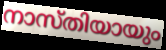
നാസ്തിയായും